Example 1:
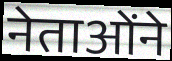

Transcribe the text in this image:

नेताओंने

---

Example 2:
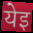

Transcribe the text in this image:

येइ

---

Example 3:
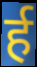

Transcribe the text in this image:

र्ह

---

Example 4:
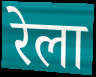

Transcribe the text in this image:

रेला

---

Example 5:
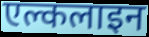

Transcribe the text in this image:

एल्कलाइन